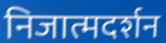
निजात्मदर्शन